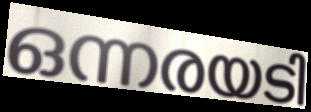
ഒന്നരയടി